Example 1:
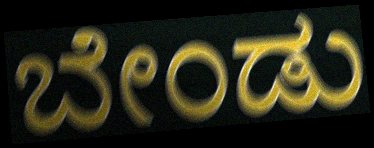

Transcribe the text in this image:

ಬೇಂಡು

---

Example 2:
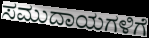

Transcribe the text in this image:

ಸಮುದಾಯಗಳಿಗೆ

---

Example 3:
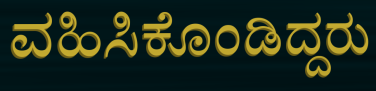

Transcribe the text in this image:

ವಹಿಸಿಕೊಂಡಿದ್ದರು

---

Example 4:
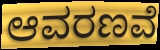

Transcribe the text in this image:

ಆವರಣವೆ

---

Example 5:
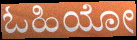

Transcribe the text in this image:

ಓಹಿಯೋ